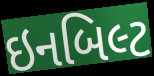
ઇનબિલ્ટ